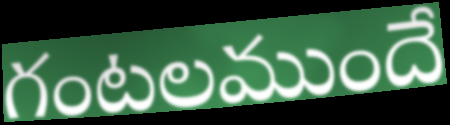
గంటలముందే